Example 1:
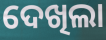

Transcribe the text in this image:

ଦେଖିଲା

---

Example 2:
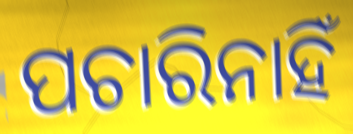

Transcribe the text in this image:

ପଚାରିନାହିଁ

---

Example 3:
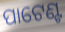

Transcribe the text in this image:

ପାଟେଣ୍ଟ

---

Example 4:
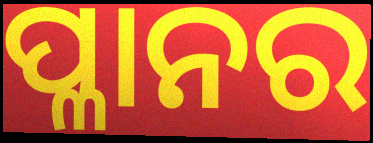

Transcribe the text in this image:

ପ୍ଳାନର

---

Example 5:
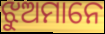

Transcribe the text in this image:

ଝୁଅମାନେ